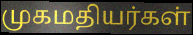
முகமதியர்கள்